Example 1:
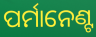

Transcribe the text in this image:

ପର୍ମାନେଣ୍ଟ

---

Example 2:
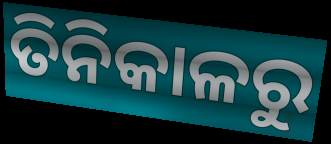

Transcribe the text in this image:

ତିନିକାଳରୁ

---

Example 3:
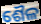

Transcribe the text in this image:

ଶୈଳ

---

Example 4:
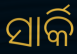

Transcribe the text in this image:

ସାର୍କି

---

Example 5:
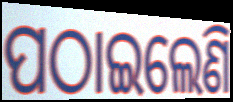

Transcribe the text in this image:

ପଠାଇଲେଣି